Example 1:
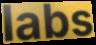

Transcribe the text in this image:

labs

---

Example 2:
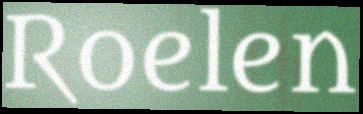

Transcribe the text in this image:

Roelen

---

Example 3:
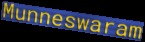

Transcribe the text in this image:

Munneswaram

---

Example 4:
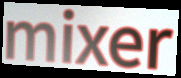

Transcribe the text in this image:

mixer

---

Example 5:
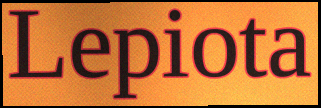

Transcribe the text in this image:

Lepiota